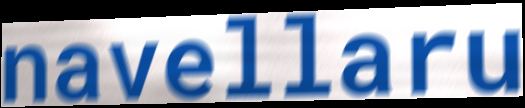
navellaru